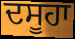
ਦਸੂਹਾ